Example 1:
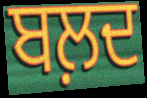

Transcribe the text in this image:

ਬਲ਼ਦ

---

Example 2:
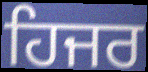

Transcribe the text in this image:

ਹਿਜਰ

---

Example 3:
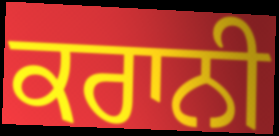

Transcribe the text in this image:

ਕਰਾਨੀ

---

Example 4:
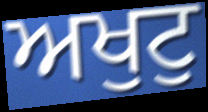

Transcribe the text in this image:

ਅਖੁਟੁ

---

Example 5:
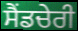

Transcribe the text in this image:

ਸੈਂਡਚੇਰੀ